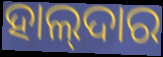
ହାଲ୍‌ଦାର